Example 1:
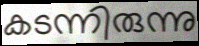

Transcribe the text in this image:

കടന്നിരുന്നു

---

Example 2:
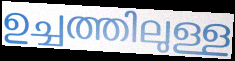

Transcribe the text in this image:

ഉച്ചത്തിലുള്ള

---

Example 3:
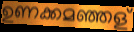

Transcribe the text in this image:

ഉണക്കമഞ്ഞള്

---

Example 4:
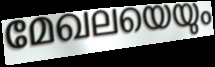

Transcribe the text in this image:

മേഖലയെയും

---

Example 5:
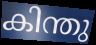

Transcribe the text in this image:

കിന്തു